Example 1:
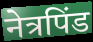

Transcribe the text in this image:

नेत्रपिंड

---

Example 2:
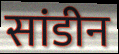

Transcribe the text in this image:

सांडीन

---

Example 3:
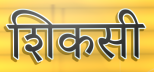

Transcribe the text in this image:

शिकसी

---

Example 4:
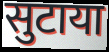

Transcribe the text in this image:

सुटाया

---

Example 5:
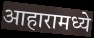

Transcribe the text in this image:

आहारामध्ये